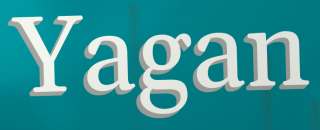
Yagan